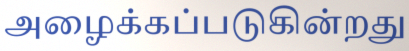
அழைக்கப்படுகின்றது